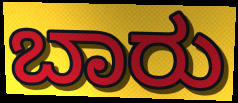
ಬಾರು